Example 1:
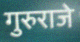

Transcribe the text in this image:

गुरुराजे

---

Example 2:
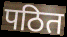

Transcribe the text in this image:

पठित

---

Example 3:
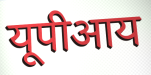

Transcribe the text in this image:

यूपीआय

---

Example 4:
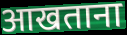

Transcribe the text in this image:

आखताना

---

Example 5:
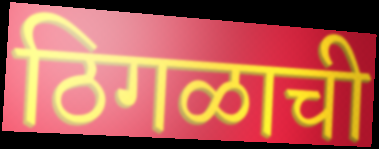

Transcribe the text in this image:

ठिगळाची